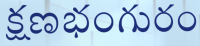
క్షణభంగురం